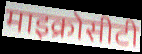
माइक्रोसीटी